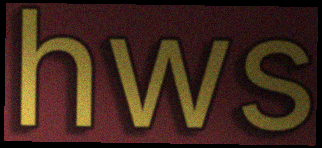
hws